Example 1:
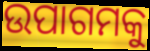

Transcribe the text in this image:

ଉପାଗମକୁ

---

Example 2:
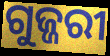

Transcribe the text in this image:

ଗୁଜ୍ଜରୀ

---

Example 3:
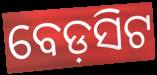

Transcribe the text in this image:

ବେଡ଼ସିଟ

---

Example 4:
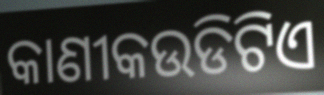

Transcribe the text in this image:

କାଣୀକଉଡିଟିଏ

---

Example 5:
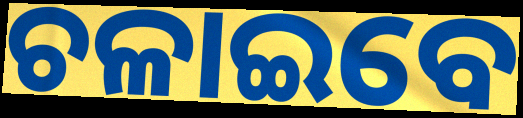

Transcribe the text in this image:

ଚଳାଇବେ